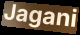
Jagani